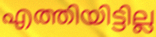
എത്തിയിട്ടില്ല